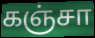
கஞ்சா